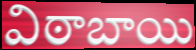
విఠాబాయి